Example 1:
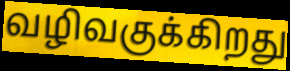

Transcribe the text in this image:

வழிவகுக்கிறது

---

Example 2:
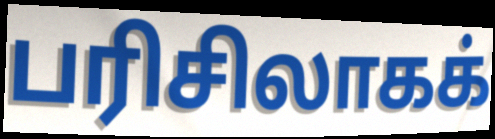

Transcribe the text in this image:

பரிசிலாகக்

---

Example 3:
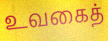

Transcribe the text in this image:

உவகைத்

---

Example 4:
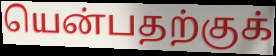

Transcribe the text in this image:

யென்பதற்குக்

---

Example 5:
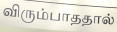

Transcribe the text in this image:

விரும்பாததால்